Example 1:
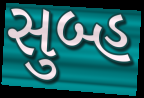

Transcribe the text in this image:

સુબ્હ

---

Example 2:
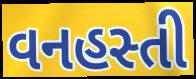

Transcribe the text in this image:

વનહસ્તી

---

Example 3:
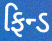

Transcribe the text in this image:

ફિન્ડ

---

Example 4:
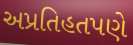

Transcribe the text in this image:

અપ્રતિહતપણે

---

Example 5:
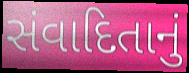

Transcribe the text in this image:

સંવાદિતાનું